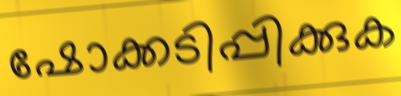
ഷോക്കടിപ്പിക്കുക